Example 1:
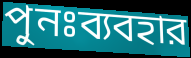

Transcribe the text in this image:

পুনঃব্যবহার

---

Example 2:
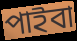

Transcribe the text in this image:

পাইবা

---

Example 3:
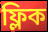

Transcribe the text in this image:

ফ্লিক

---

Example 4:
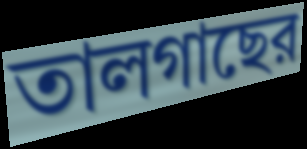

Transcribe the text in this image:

তালগাছের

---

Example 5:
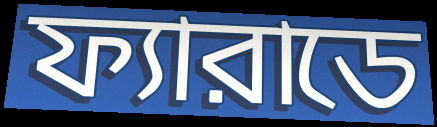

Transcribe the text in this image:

ফ্যারাডে